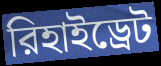
রিহাইড্রেট